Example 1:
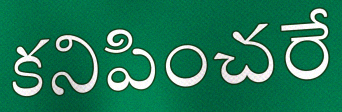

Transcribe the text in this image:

కనిపించరే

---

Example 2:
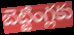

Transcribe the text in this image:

బెట్టింగ్లకు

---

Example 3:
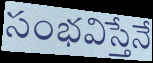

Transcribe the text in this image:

సంభవిస్తేనే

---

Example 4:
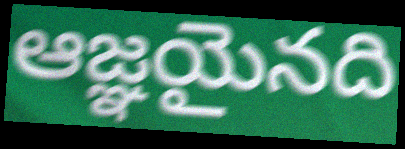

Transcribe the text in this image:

ఆజ్ఞయైనది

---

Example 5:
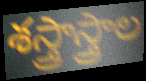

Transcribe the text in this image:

శస్త్రాస్త్రాల